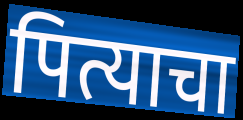
पित्याचा